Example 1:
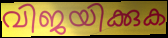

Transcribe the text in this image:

വിജയിക്കുക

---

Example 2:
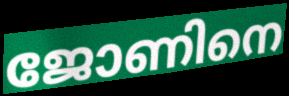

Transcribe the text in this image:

ജോണിനെ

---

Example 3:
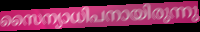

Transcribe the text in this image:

സൈന്യാധിപനായിരുന്നു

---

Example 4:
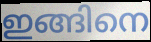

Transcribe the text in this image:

ഇങ്ങിനെ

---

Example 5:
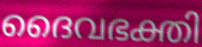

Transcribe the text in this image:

ദൈവഭക്തി